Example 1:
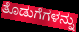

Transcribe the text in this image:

ತೊಡುಗೆಗಳನ್ನು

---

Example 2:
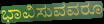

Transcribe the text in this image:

ಭಾವಿಸುವವರೂ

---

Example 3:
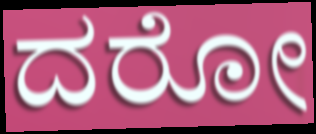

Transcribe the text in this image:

ದರೋ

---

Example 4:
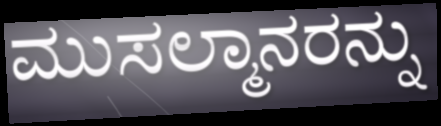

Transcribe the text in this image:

ಮುಸಲ್ಮಾನರನ್ನು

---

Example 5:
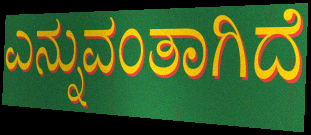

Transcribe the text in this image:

ಎನ್ನುವಂತಾಗಿದೆ